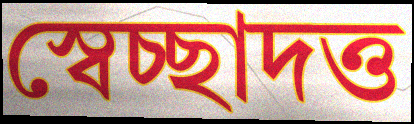
স্বেচ্ছাদত্ত